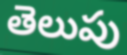
తెలుపు